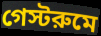
গেস্টরুমে